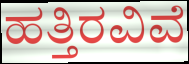
ಹತ್ತಿರವಿವೆ